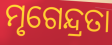
ମୃଗେନ୍ଦ୍ରତା